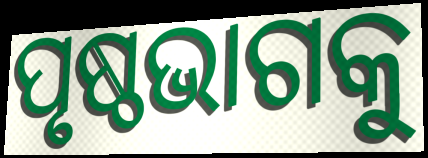
ପୃଷ୍ଠଭାଗକୁ